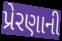
પ્રેરણાની